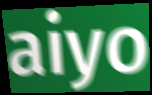
aiyo